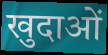
खुदाओं